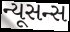
ન્યૂસન્સ